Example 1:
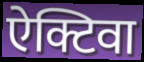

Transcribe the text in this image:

ऐक्टिवा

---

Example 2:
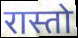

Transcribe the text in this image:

रास्तो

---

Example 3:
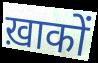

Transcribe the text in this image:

ख़ाकों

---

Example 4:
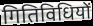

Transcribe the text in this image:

गितिविधियों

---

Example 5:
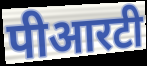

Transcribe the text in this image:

पीआरटी